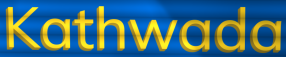
Kathwada